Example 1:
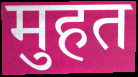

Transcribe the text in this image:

मुहत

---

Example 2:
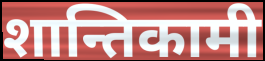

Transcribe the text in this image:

शान्तिकामी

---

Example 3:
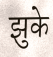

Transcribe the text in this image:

झुके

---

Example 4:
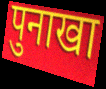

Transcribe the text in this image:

पुनाखा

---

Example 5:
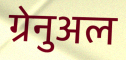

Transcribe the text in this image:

ग्रेनुअल